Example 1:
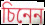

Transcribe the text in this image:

চিনেন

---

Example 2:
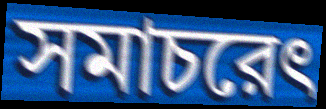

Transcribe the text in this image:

সমাচরেৎ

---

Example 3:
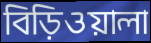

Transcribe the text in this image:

বিড়িওয়ালা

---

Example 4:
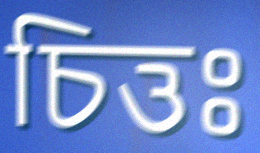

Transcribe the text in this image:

চিত্তঃ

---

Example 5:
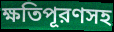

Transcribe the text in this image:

ক্ষতিপূরণসহ